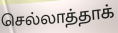
செல்லாத்தாக்